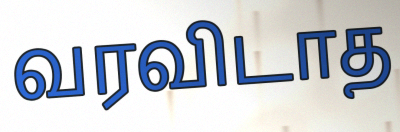
வரவிடாத